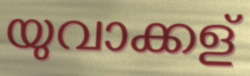
യുവാക്കള്